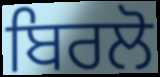
ਬਿਰਲੋ